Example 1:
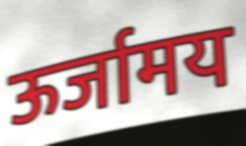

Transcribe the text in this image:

ऊर्जामय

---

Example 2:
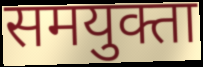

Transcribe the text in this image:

समयुक्ता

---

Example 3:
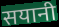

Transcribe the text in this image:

सयानी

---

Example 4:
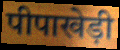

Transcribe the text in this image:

पीपाखेड़ी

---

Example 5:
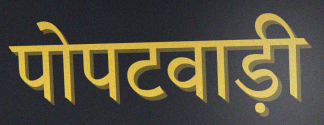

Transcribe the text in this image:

पोपटवाड़ी